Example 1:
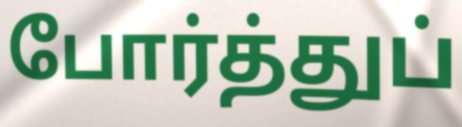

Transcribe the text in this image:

போர்த்துப்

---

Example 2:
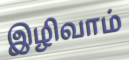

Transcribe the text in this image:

இழிவாம்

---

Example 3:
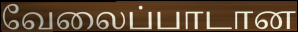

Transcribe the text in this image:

வேலைப்பாடான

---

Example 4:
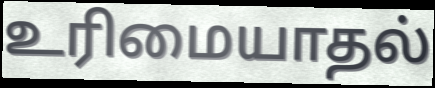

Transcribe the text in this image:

உரிமையாதல்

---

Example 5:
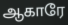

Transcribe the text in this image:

ஆகாரே